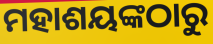
ମହାଶୟଙ୍କଠାରୁ